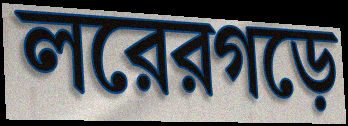
লরেরগড়ে